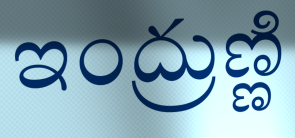
ఇంద్రుణ్ణి